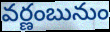
వర్ణంబునుం